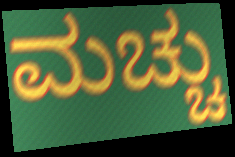
ಮಚ್ಚು